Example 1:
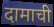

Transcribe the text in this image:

दामाची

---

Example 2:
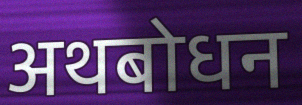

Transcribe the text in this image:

अथबोधन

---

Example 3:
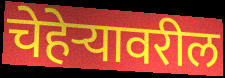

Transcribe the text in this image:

चेहेऱ्यावरील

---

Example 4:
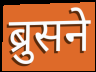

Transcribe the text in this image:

ब्रुसने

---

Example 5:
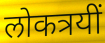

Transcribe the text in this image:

लोकत्रयीं